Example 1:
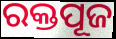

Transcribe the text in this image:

ରକ୍ତପୂଜ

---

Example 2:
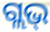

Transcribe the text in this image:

ଗ୍ଲଭ୍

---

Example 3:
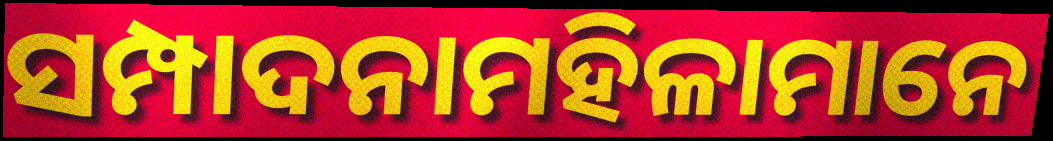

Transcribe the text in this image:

ସମ୍ପାଦନାମହିଳାମାନେ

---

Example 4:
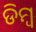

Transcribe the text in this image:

ଡିମ୍ଵ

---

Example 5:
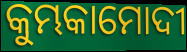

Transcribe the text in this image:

କୁମ୍ଭକାମୋଦୀ